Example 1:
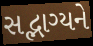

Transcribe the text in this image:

સદ્ભાગ્યને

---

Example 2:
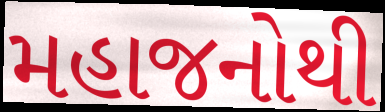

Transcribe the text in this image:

મહાજનોથી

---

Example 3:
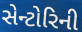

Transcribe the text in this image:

સેન્ટોરિની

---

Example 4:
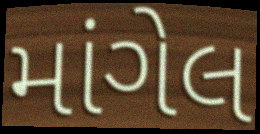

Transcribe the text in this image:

માંગેલ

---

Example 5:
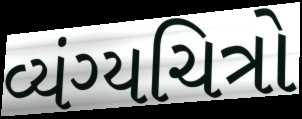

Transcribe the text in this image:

વ્યંગ્યચિત્રો